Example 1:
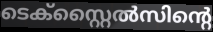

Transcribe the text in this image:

ടെക്സ്റ്റൈൽസിന്റെ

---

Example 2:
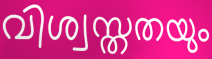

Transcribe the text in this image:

വിശ്വസ്തതയും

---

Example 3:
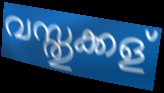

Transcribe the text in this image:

വസ്തുക്കള്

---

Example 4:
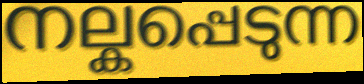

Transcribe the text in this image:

നല്കപ്പെടുന്ന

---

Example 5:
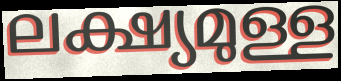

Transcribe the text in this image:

ലക്ഷ്യമുള്ള